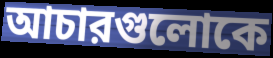
আচারগুলোকে